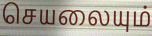
செயலையும்